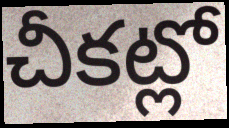
చీకట్లో